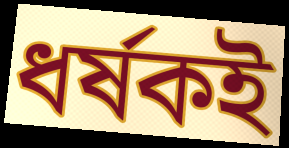
ধর্ষকই